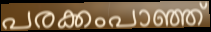
പരക്കംപാഞ്ഞ്